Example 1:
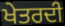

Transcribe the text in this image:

ਖੇਤਰਦੀ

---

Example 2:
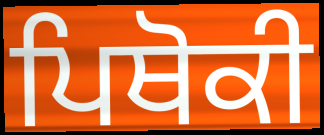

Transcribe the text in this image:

ਪਿਥੋਕੀ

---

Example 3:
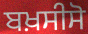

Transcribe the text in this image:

ਬਖ਼ਸੀਸੋ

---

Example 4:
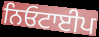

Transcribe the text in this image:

ਨਿਓਟਾਈਪ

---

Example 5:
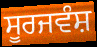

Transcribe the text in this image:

ਸੂਰਜਵੰਸ਼